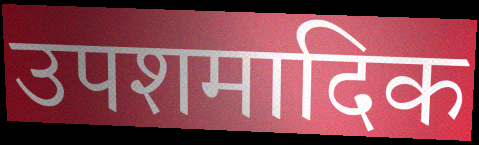
उपशमादिक